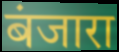
बंजारा